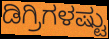
ಡಿಗ್ರಿಗಳಷ್ಟು